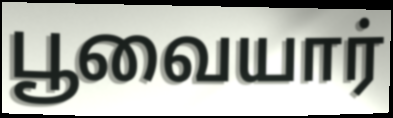
பூவையார்